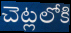
చెట్లలోకి